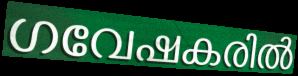
ഗവേഷകരിൽ